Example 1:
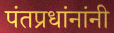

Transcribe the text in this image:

पंतप्रधांनांनी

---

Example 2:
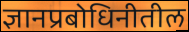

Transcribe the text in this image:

ज्ञानप्रबोधिनीतील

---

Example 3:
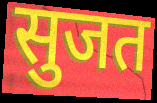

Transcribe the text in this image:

सुजत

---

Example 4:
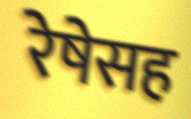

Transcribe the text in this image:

रेषेसह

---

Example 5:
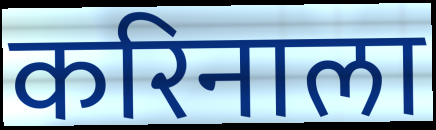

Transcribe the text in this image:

करिनाला